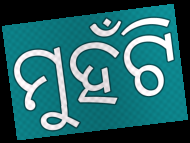
ମୁହଁଟି